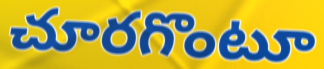
చూరగొంటూ